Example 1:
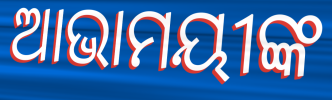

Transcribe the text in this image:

ଆଭାମୟୀଙ୍କ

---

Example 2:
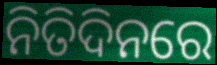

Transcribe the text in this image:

ନିତିଦିନରେ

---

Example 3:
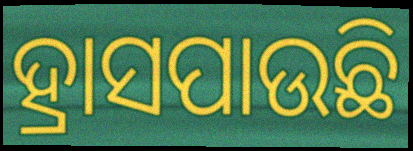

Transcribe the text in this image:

ହ୍ରାସପାଉଛି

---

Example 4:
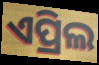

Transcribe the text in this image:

ଏପ୍ରିଲ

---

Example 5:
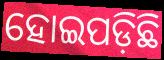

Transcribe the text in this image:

ହୋଇପଡ଼ିଛି